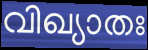
വിഖ്യാതഃ